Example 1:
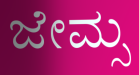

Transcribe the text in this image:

ಜೇಮ್ಸ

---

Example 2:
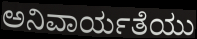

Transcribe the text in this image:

ಅನಿವಾರ್ಯತೆಯು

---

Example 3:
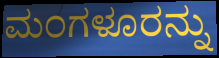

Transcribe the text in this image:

ಮಂಗಳೂರನ್ನು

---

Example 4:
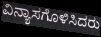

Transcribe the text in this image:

ವಿನ್ಯಾಸಗೊಳಿಸಿದರು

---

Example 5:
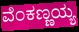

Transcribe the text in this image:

ವೆಂಕಣ್ಣಯ್ಯ